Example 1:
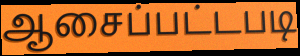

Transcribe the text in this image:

ஆசைப்பட்டபடி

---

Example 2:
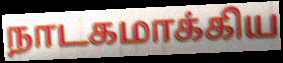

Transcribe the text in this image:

நாடகமாக்கிய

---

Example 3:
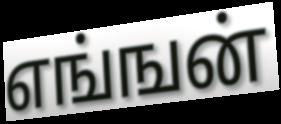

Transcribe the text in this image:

எங்ஙன்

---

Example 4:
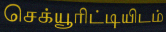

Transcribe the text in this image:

செக்யூரிட்டியிடம்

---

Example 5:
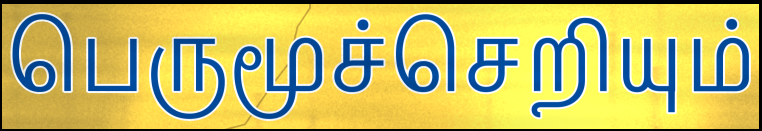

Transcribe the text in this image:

பெருமூச்செறியும்